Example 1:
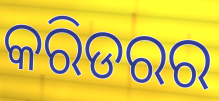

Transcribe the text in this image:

କରିଡରର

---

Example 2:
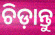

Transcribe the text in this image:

ଚିଡ଼ାନ୍ତୁ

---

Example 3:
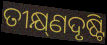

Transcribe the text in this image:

ତୀକ୍ଷ୍‌ଣଦୃଷ୍ଟି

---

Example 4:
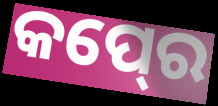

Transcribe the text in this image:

କପ୍‍ରେ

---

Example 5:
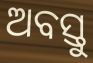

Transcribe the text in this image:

ଅବସ୍ତୁ